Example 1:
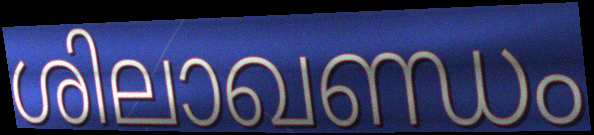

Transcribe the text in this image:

ശിലാഖണ്ഡം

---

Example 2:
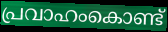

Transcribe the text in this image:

പ്രവാഹംകൊണ്ട്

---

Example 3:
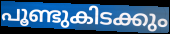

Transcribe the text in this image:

പൂണ്ടുകിടക്കും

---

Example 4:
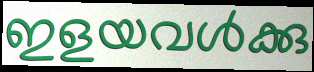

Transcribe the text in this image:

ഇളയവൾക്കു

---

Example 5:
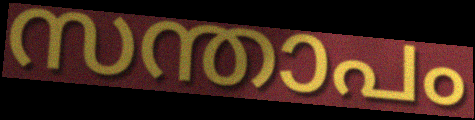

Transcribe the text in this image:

സന്താപം